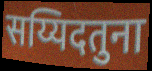
सय्यिदतुना